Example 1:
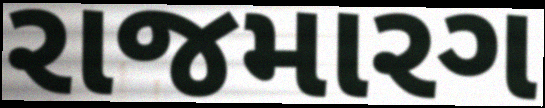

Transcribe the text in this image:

રાજમારગ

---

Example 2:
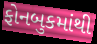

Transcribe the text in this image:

ફોનબુકમાંથી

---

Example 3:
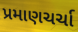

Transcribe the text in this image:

પ્રમાણચર્ચા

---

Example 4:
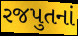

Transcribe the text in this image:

રજપુતનાં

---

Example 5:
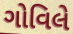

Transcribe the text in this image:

ગોવિલે